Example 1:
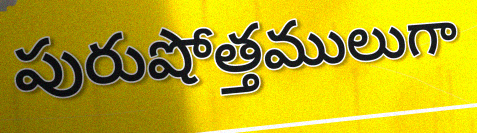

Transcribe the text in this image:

పురుషోత్తములుగా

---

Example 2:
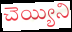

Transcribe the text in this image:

చెయ్యిని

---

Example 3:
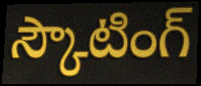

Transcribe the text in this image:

స్కౌటింగ్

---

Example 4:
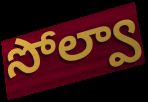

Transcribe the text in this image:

సోల్వా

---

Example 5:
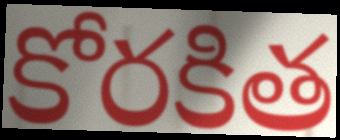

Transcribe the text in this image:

కోరకిత